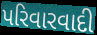
પરિવારવાદી